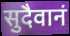
सुदैवानं